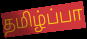
தமிழ்ப்பா